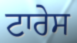
ਟਾਰੇਸ